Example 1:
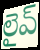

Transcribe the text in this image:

లైవ్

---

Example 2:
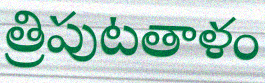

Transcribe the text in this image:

త్రిపుటతాళం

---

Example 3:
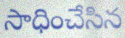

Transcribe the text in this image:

సాధించేసిన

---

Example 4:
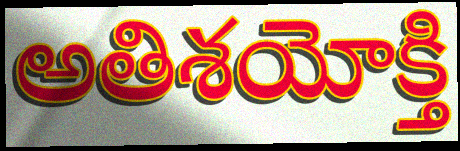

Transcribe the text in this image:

అతిశయోక్తి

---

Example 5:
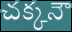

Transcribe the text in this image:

చక్కనౌ